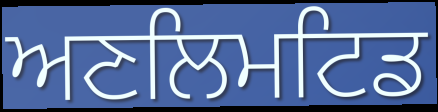
ਅਣਲਿਮਟਿਡ